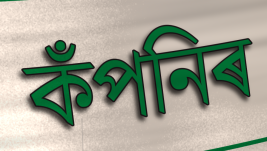
কঁপনিৰ